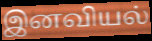
இனவியல்